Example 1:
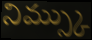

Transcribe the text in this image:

నిమ్స్కు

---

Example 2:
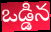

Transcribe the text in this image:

ఒడ్డిన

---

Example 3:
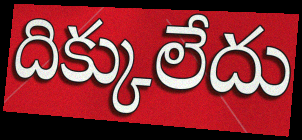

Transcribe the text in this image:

దిక్కులేదు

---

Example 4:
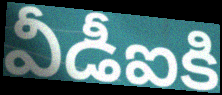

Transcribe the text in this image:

వీడీఐకి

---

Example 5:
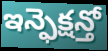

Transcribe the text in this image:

ఇన్ఫెక్షన్తో